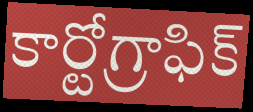
కార్టోగ్రాఫిక్